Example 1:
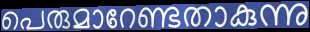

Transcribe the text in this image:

പെരുമാറേണ്ടതാകുന്നു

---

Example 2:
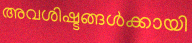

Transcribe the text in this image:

അവശിഷ്ടങ്ങൾക്കായി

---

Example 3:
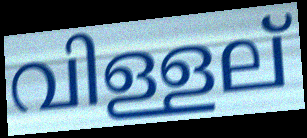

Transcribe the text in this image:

വിള്ളല്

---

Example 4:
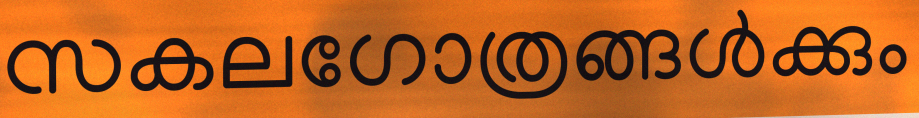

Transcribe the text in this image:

സകലഗോത്രങ്ങൾക്കും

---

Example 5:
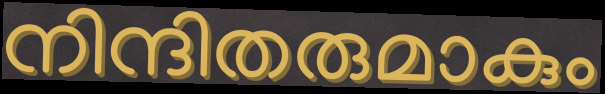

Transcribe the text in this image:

നിന്ദിതരുമാകും